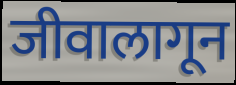
जीवालागून